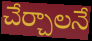
చేర్చాలనే